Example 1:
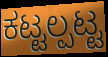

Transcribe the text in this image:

ಕಟ್ಟಲ್ಪಟ್ಟ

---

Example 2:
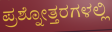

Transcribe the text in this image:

ಪ್ರಶ್ನೋತ್ತರಗಳಲ್ಲಿ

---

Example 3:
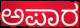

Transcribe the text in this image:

ಅಪಾರ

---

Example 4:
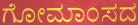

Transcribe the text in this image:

ಗೋಮಾಂಸದ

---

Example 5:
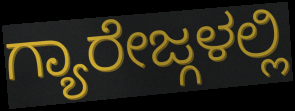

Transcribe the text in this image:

ಗ್ಯಾರೇಜ್ಗಳಲ್ಲಿ